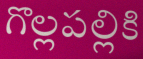
గొల్లపల్లికి